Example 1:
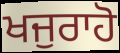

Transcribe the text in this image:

ਖਜੁਰਾਹੋ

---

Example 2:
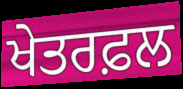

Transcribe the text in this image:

ਖੇਤਰਫ਼ਲ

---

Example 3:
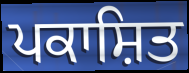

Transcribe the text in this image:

ਪਕਾਸ਼ਿਤ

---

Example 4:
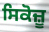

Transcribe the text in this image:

ਸਿਕੋਜ਼ੂ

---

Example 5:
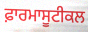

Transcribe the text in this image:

ਫ਼ਾਰਮਾਸੂਟੀਕਲ